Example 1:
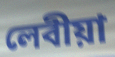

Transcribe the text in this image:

লেবীয়া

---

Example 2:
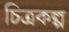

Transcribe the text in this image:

চিত্ৰকল্প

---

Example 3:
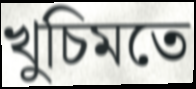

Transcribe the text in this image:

খুচিমতে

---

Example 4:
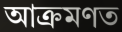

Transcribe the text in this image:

আক্ৰমণত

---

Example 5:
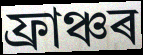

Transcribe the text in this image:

ফ্ৰাঞ্চৰ